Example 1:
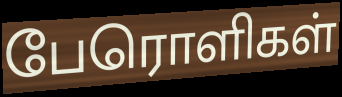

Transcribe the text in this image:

பேரொளிகள்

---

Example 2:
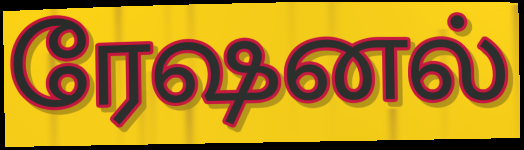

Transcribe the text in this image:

ரேஷனல்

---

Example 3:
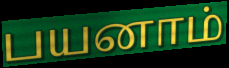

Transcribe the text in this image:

பயனாம்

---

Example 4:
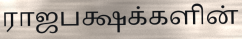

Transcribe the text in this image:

ராஜபக்ஷக்களின்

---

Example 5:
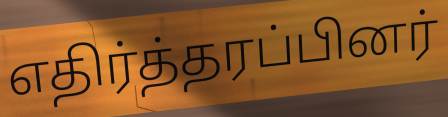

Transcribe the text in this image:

எதிர்த்தரப்பினர்